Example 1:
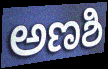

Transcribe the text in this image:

ಅಣಶಿ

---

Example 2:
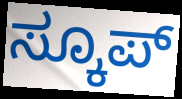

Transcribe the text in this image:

ಸ್ಕೂಪ್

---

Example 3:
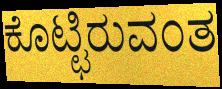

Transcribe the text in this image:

ಕೊಟ್ಟಿರುವಂತ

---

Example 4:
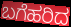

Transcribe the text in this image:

ಬಗೆಹರಿದ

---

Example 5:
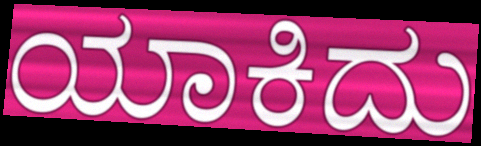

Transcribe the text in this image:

ಯಾಕಿದು